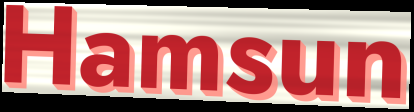
Hamsun